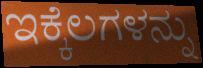
ಇಕ್ಕೆಲಗಳನ್ನು